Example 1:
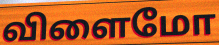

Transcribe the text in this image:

விளைமோ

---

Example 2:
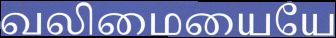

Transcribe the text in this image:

வலிமையையே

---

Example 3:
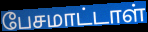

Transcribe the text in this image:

பேசமாட்டாள்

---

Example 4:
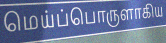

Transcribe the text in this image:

மெய்ப்பொருளாகிய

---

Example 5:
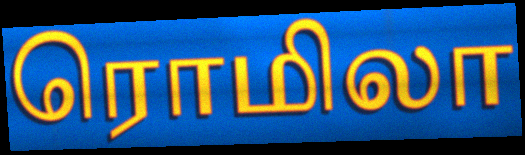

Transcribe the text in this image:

ரொமிலா